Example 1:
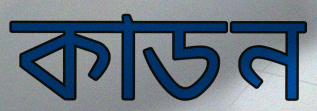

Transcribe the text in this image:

কাডন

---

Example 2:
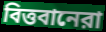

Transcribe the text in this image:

বিত্তবানেরা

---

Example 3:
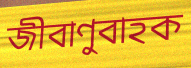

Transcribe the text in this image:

জীবাণুবাহক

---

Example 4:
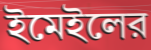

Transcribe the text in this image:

ইমেইলের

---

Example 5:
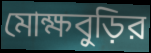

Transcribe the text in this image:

মোক্ষবুড়ির